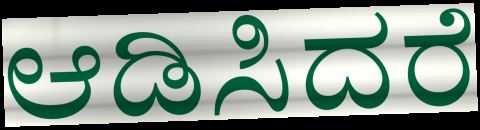
ಆಡಿಸಿದರೆ